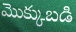
మొక్కుబడి